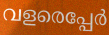
വളരെപ്പേർ